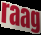
raag